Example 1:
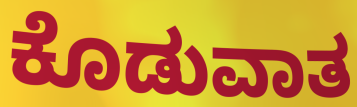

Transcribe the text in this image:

ಕೊಡುವಾತ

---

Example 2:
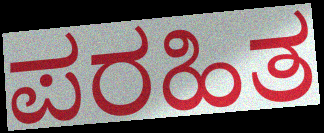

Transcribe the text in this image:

ಪರಹಿತ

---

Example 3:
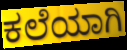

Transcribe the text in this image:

ಕಲೆಯಾಗಿ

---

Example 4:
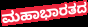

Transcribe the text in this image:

ಮಹಾಭಾರತದ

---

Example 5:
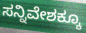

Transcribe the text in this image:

ಸನ್ನಿವೇಶಕ್ಕೂ